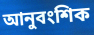
আনুবংশিক